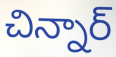
చిన్నార్